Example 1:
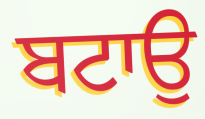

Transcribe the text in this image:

ਬਟਾਉ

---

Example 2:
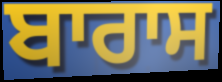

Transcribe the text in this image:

ਬਾਰਾਸ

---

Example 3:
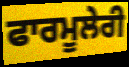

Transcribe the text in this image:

ਫਾਰਮੂਲੇਰੀ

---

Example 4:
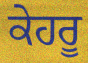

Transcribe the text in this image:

ਕੇਹਰੂ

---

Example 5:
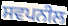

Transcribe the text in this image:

ਸਵਪਨੀਲ